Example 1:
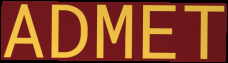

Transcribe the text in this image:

ADMET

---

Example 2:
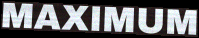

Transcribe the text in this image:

MAXIMUM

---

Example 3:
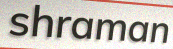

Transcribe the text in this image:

shraman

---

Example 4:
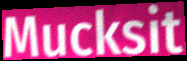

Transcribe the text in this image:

Mucksit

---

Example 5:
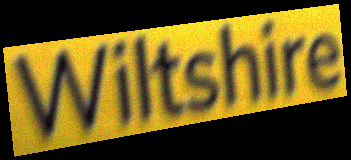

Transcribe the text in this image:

Wiltshire